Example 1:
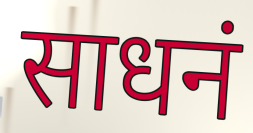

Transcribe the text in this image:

साधनं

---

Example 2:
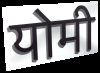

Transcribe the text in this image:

योमी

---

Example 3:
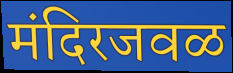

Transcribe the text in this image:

मंदिरजवळ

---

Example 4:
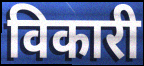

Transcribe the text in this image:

विकारी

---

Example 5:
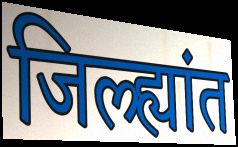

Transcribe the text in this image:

जिल्ह्यांत